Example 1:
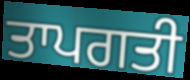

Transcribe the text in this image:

ਤਾਪਗਤੀ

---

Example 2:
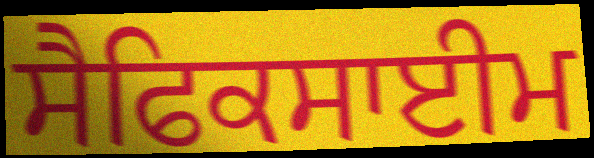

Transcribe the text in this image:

ਸੈਫਿਕਸਾਈਮ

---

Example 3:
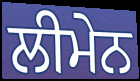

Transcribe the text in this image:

ਲੀਮੇਨ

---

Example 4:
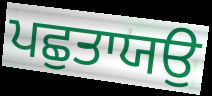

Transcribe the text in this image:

ਪਛੁਤਾਯਉ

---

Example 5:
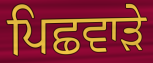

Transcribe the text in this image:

ਪਿਛਵਾੜੇ